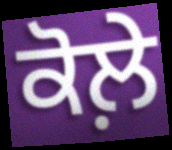
ਕੋਲ਼ੇ